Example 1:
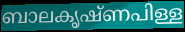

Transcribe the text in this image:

ബാലകൃഷ്ണപിള്ള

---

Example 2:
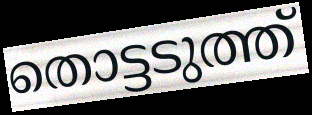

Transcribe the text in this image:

തൊട്ടടുത്ത്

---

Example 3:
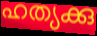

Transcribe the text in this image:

ഹത്യക്കു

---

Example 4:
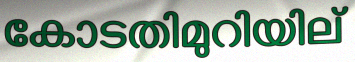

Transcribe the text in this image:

കോടതിമുറിയില്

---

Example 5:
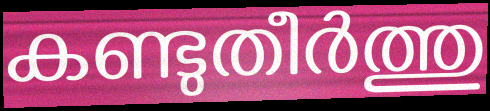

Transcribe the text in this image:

കണ്ടുതീർത്തു